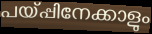
പയ്പ്പിനേക്കാളും